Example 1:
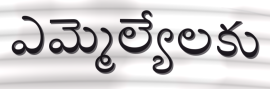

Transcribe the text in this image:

ఎమ్మెల్యేలకు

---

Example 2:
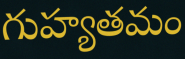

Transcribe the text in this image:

గుహ్యతమం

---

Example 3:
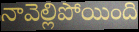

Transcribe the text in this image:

నావెల్లిపోయింది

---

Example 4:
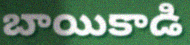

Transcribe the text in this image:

బాయికాడి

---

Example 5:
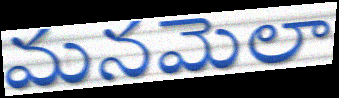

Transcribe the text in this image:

మనమెలా